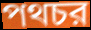
পথচর